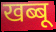
खब्बू